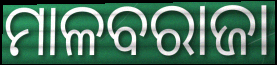
ମାଳବରାଜା